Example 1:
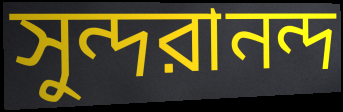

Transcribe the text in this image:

সুন্দরানন্দ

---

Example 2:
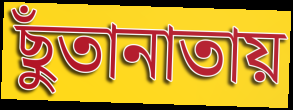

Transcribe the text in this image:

ছুঁতানাতায়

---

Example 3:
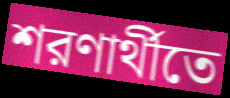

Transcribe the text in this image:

শরণার্থীতে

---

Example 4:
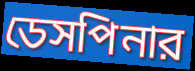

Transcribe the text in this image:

ডেসপিনার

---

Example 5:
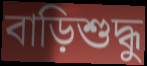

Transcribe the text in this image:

বাড়িশুদ্ধু